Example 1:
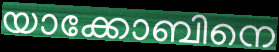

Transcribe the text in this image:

യാക്കോബിനെ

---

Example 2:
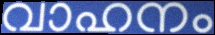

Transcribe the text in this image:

വാഹനം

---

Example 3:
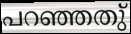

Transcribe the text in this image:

പറഞ്ഞതു്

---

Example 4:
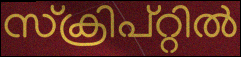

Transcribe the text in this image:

സ്ക്രിപ്റ്റിൽ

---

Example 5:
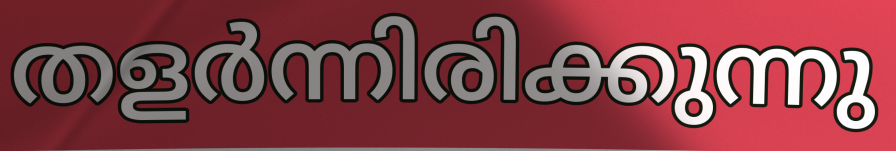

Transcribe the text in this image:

തളർന്നിരിക്കുന്നു